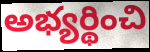
అభ్యర్థించి